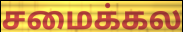
சமைக்கல